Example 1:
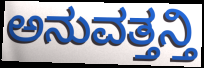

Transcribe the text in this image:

ಅನುವತ್ತನ್ತಿ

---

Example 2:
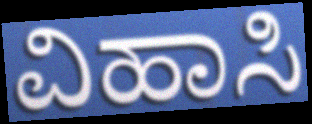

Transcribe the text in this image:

ವಿಹಾಸಿ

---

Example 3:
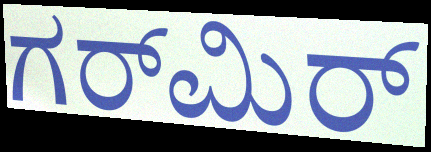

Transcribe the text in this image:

ಗರ್‌ಮಿರ್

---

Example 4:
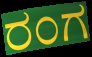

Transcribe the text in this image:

ರಂಗ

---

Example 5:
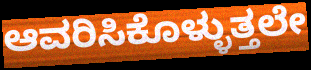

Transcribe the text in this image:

ಆವರಿಸಿಕೊಳ್ಳುತ್ತಲೇ